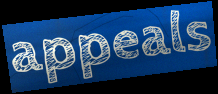
appeals